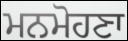
ਮਨਮੋਹਣਾ